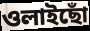
ওলাইছোঁ